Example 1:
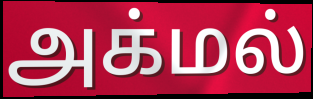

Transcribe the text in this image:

அக்மல்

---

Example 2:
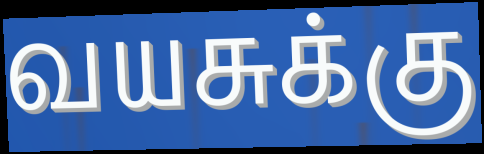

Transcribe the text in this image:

வயசுக்கு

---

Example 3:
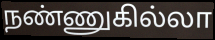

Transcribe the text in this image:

நண்ணுகில்லா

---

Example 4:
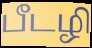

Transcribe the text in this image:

பீடழி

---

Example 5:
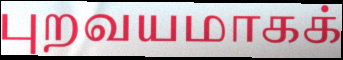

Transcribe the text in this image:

புறவயமாகக்